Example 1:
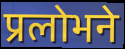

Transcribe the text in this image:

प्रलोभने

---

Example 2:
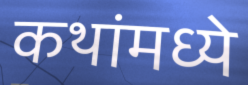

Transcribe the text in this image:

कथांमध्ये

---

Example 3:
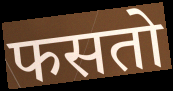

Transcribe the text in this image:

फसतो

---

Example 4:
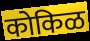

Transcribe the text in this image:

कोकिळ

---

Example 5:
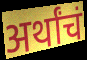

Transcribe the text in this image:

अर्थांचं